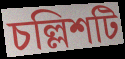
চল্লিশটি